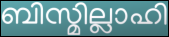
ബിസ്മില്ലാഹി